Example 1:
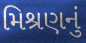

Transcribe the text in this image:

મિશ્રણનું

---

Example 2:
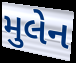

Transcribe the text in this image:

મુલેન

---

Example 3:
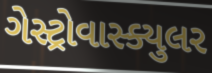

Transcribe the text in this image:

ગેસ્ટ્રોવાસ્ક્યુલર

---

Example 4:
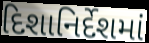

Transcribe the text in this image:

દિશાનિર્દેશમાં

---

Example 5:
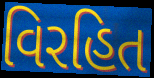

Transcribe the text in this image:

વિરહિત